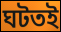
ঘটতই